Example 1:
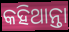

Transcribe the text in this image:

କହିଥାନ୍ତା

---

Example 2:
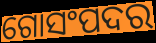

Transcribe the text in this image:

ଗୋସଂପଦର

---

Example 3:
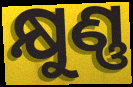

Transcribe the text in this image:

କ୍ଷୁଣ୍ଣ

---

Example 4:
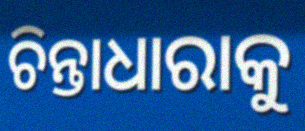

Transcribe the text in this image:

ଚିନ୍ତାଧାରାକୁ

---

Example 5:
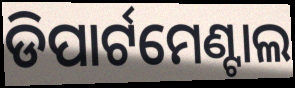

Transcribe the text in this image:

ଡିପାର୍ଟମେଣ୍ଟାଲ